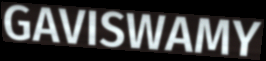
GAVISWAMY